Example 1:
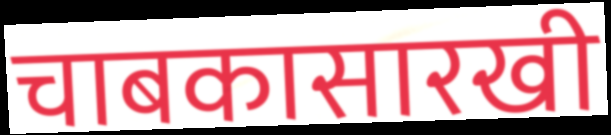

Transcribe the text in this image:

चाबकासारखी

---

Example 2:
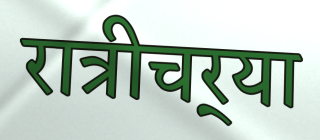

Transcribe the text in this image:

रात्रीचर्या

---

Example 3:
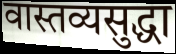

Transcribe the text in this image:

वास्तव्यसुद्धा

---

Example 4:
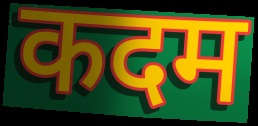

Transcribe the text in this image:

कदम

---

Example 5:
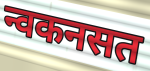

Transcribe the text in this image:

न्वकनसत